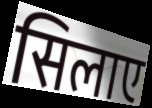
सिलाए